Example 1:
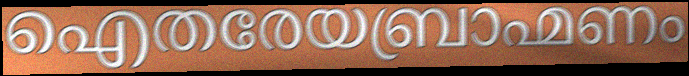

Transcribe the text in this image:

ഐതരേയബ്രാഹ്മണം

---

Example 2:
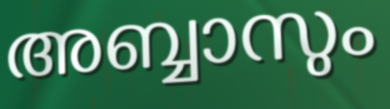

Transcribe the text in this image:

അബ്ബാസും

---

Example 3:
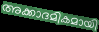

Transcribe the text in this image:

അക്കാദമികമായി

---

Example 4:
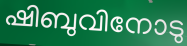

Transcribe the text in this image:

ഷിബുവിനോടു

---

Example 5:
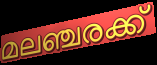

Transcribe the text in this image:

മലഞ്ചരക്ക്